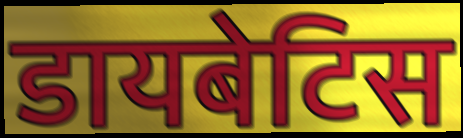
डायबेटिस